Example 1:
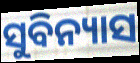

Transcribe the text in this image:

ସୁବିନ୍ୟାସ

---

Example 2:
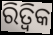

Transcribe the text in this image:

ରିତ୍ୱିକ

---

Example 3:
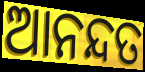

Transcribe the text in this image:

ଆନନ୍ଦତ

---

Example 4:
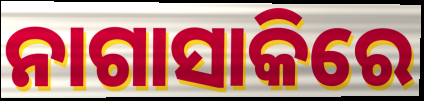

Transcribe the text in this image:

ନାଗାସାକିରେ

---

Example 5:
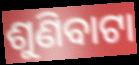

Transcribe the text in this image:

ଶୁଣିବାଟା